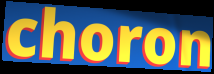
choron